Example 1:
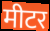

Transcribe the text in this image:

मीटर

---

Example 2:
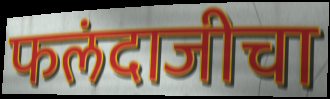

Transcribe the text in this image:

फलंदाजीचा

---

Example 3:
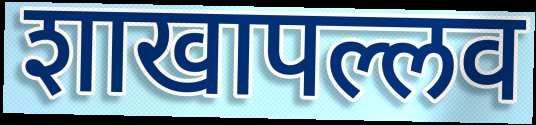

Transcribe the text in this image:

शाखापल्लव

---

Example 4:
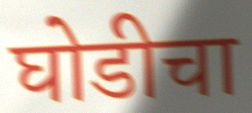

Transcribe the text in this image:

घोडीचा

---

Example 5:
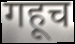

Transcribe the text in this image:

गहूच